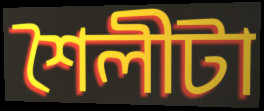
শৈলীটা